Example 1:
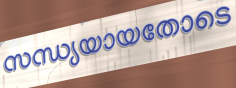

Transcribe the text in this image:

സന്ധ്യയായതോടെ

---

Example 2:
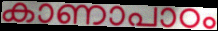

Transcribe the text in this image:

കാണാപാഠം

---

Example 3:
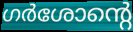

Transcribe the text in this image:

ഗർശോന്റെ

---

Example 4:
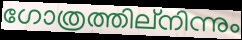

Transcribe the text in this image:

ഗോത്രത്തില്നിന്നും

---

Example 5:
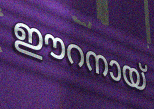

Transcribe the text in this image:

ഈറനായ്